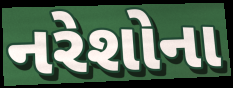
નરેશોના